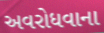
અવરોધવાના